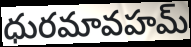
ధురమావహమ్